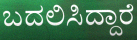
ಬದಲಿಸಿದ್ದಾರೆ